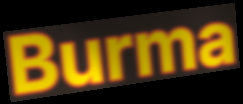
Burma